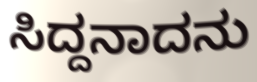
ಸಿದ್ದನಾದನು